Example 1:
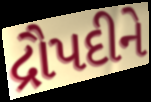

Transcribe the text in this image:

દ્રૌપદીને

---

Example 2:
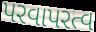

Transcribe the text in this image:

પરવાપરત્વ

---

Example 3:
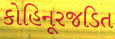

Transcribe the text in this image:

કોહિનૂરજડિત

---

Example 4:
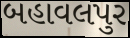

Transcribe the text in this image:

બહાવલપુર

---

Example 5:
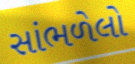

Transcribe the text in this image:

સાંભળેલો